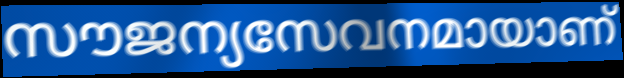
സൗജന്യസേവനമായാണ്